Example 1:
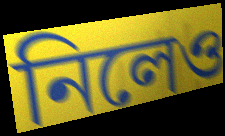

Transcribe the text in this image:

নিলেও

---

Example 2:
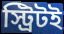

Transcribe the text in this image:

স্ট্রিটই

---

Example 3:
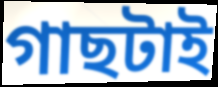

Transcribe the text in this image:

গাছটাই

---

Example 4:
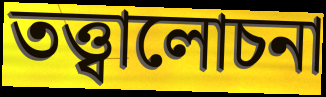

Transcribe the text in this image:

তত্ত্বালোচনা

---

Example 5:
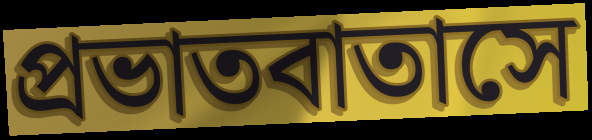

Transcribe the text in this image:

প্রভাতবাতাসে